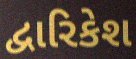
દ્વારિકેશ